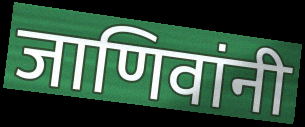
जाणिवांनी